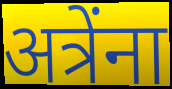
अत्रेंना